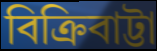
বিক্রিবাট্টা